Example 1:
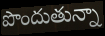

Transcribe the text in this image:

పొందుతున్నా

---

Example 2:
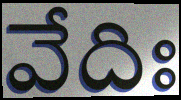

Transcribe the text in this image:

వేదిః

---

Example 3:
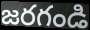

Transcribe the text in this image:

జరగండి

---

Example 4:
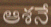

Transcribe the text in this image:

ఆశనే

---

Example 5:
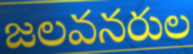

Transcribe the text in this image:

జలవనరుల